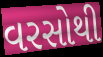
વરસોથી